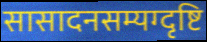
सासादनसम्यग्दृष्टि